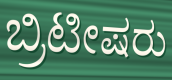
ಬ್ರಿಟೀಷರು